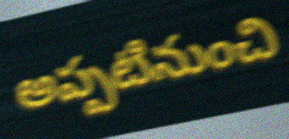
అప్పటినుంచి